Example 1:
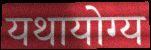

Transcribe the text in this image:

यथायोग्य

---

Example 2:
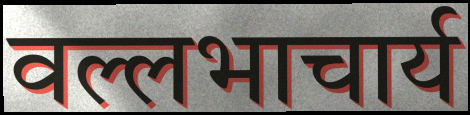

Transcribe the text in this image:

वल्लभाचार्य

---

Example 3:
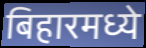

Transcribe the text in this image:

बिहारमध्ये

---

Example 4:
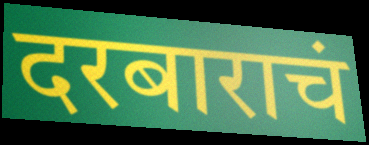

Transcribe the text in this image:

दरबाराचं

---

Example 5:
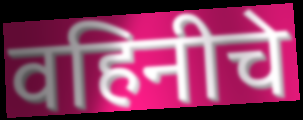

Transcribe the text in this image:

वहिनीचे